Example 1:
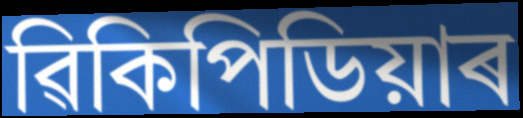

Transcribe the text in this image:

ৱিকিপিডিয়াৰ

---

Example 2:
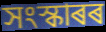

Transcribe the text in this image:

সংস্কাৰৰ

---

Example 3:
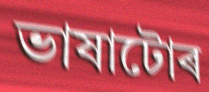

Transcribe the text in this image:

ভাষাটোৰ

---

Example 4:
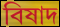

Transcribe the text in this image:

বিষাদ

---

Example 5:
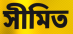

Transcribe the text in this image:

সীমিত